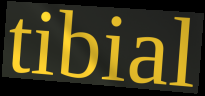
tibial